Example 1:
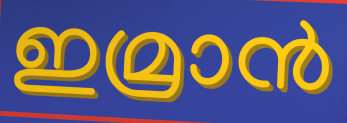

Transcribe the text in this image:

ഇമ്രാൻ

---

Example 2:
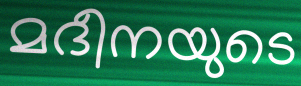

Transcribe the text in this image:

മദീനയുടെ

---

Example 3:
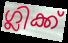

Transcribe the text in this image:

ഗ്ലിക്ക്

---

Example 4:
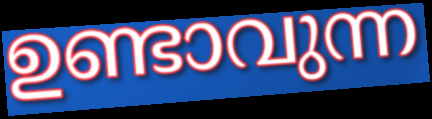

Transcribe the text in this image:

ഉണ്ടാവുന്ന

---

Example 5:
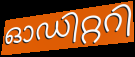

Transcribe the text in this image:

ഓഡിറ്ററി